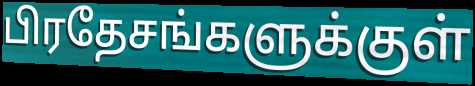
பிரதேசங்களுக்குள்